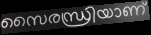
സൈരന്ധ്രിയാണ്